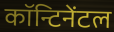
कॉन्टिनेंटल